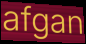
afgan